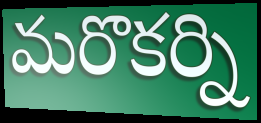
మరొకర్ని